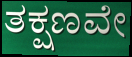
ತಕ್ಷಣವೇ